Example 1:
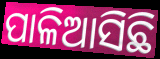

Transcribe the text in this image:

ପାଳିଆସିଛି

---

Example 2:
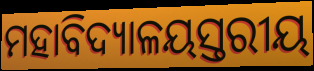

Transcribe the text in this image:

ମହାବିଦ୍ୟାଳୟସ୍ତରୀୟ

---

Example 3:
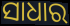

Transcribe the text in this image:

ସାଧାର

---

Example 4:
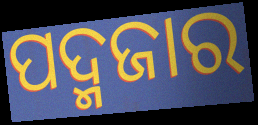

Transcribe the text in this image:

ପଦ୍ମଜାର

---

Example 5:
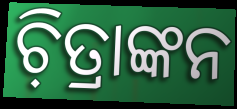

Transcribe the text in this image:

ଚ଼ିତ୍ରାଙ୍କନ